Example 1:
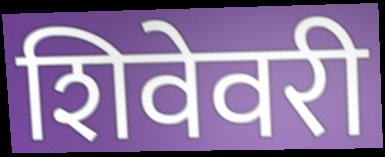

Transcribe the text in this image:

शिवेवरी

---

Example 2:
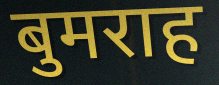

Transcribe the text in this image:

बुमराह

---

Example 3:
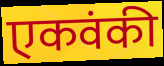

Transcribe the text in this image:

एकवंकी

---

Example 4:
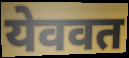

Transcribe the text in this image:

येववत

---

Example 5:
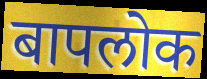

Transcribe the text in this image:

बापलोक